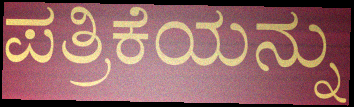
ಪತ್ರಿಕೆಯನ್ನು